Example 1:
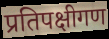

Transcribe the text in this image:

प्रतिपक्षीगण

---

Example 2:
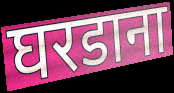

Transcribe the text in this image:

घरडाना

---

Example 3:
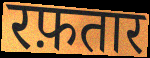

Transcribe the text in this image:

रफ़तार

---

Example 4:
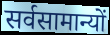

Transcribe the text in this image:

सर्वसामान्यों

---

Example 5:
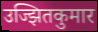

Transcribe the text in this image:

उज्झितकुमार